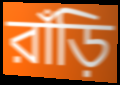
রাঁড়ি